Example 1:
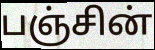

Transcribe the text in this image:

பஞ்சின்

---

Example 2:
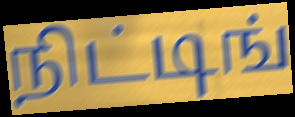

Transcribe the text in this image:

நிட்டிங்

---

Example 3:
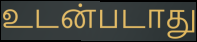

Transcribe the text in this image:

உடன்படாது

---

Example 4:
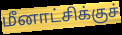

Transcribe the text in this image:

மீனாட்சிக்குச்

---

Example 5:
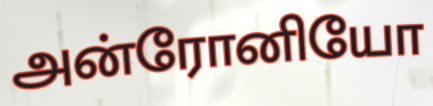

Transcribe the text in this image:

அன்ரோனியோ